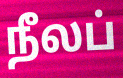
நீலப்